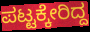
ಪಟ್ಟಕ್ಕೇರಿದ್ದ